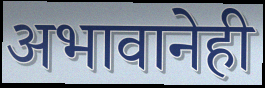
अभावानेही